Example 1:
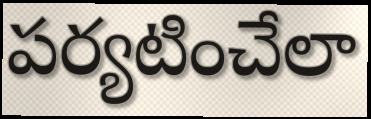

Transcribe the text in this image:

పర్యటించేలా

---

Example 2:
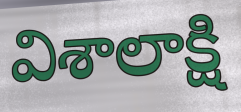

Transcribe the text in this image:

విశాలాక్షి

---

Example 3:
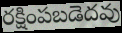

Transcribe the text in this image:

రక్షింపబడెదవు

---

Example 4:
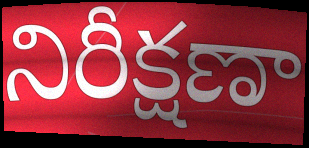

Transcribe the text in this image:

నిరీక్షణా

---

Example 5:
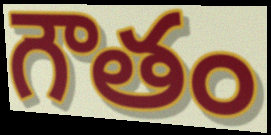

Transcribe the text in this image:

గౌతం